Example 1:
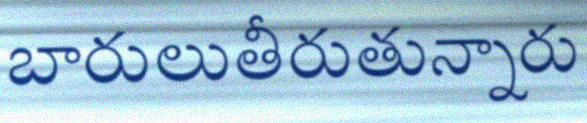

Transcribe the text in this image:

బారులుతీరుతున్నారు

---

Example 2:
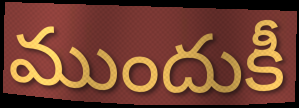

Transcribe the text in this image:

ముందుకీ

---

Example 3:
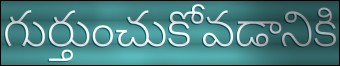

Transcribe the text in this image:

గుర్తుంచుకోవడానికి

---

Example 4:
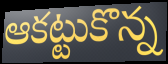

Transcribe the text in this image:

ఆకట్టుకొన్న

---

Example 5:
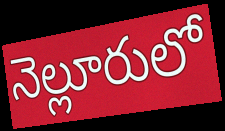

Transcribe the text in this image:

నెల్లూరులో